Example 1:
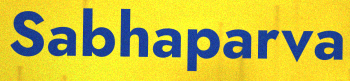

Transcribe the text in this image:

Sabhaparva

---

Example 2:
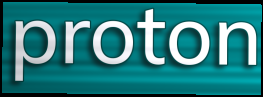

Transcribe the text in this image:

proton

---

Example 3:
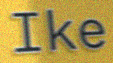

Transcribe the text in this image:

Ike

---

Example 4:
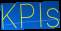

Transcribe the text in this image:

KPIs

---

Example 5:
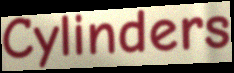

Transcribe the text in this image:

Cylinders